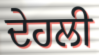
ਦੇਹਲੀ